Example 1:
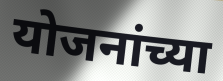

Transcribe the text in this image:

योजनांच्या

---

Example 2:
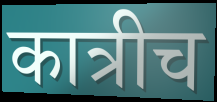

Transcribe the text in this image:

कात्रीच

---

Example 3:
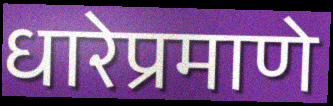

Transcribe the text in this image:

धारेप्रमाणे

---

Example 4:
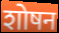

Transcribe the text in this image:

शोषन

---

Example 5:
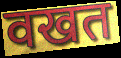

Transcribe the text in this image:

वखत